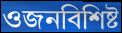
ওজনবিশিষ্ট